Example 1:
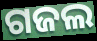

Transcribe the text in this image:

ଗଜଲ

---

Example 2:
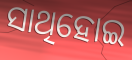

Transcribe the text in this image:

ସାଥିହୋଇ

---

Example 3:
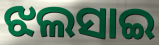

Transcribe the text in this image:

ଝଲସାଇ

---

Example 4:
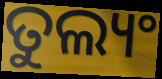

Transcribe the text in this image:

ତୁଲ୍ୟଂ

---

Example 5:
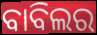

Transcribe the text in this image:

ବାବିଲର